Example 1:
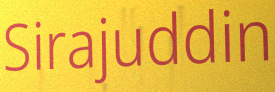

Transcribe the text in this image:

Sirajuddin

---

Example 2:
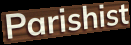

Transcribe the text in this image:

Parishist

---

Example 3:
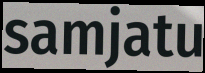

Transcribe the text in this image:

samjatu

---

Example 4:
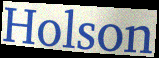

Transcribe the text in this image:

Holson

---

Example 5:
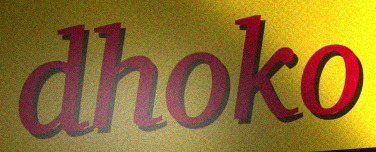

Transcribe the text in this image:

dhoko